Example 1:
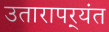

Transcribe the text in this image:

उतारापर्यंत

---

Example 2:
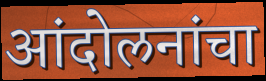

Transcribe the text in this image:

आंदोलनांचा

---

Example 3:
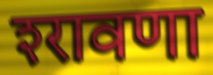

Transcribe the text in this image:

श्रावणा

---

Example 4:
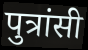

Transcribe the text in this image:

पुत्रांसी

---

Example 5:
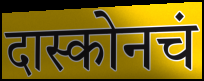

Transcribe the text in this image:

दास्कोनचं